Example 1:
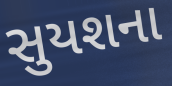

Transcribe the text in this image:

સુયશના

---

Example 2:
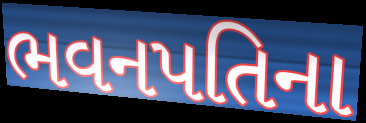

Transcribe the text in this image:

ભવનપતિના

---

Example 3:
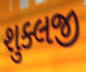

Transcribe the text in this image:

શુક્લજી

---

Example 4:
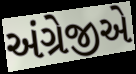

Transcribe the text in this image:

અંગ્રેજીએ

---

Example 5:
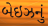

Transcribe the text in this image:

બેઇઝનું